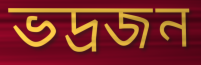
ভদ্রজন